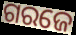
ଗରଜେ